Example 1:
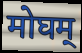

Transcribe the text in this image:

मोघम्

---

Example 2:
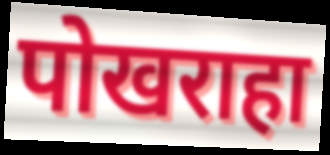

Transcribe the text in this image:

पोखराहा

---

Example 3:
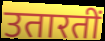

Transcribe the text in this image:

उतारतीं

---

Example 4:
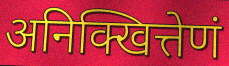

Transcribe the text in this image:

अनिक्खित्तेणं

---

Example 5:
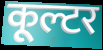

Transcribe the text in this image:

कूल्‍टर